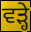
ਵੜ੍ਹੇ